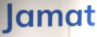
Jamat